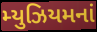
મ્યુઝિયમનાં